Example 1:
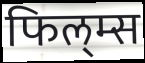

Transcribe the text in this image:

फिल्म्स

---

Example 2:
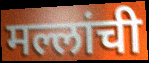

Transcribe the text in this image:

मल्लांची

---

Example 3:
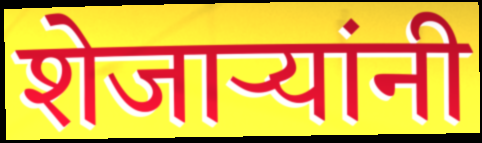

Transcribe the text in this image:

शेजाऱ्यांनी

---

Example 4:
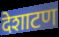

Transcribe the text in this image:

देशाटण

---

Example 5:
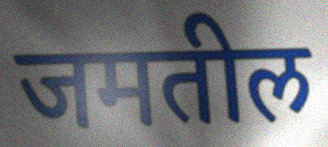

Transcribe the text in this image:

जमतील